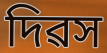
দিৱস